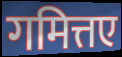
गमित्तए